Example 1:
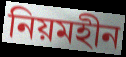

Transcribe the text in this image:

নিয়মহীন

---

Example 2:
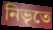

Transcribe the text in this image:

নিভৃতে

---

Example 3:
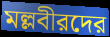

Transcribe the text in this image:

মল্লবীরদের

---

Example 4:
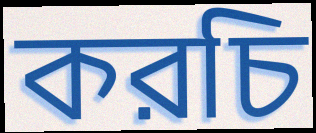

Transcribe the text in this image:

করচি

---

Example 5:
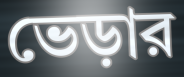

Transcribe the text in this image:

ভেড়ার